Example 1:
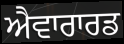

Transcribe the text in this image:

ਐਵਾਰਾਰਡ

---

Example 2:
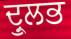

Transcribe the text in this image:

ਦ੍ਰੁਲਭ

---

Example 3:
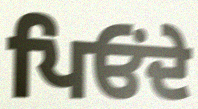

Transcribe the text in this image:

ਪਿਓਂਦੇ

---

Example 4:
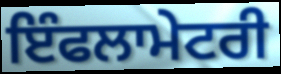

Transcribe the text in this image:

ਇੰਫਲਾਮੇਟਰੀ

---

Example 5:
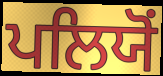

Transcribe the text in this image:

ਪਲਿਯੋਂ